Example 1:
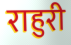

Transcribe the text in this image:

राहुरी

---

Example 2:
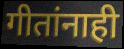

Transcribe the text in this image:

गीतांनाही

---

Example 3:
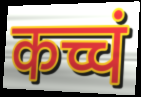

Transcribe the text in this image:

कच्चं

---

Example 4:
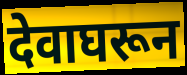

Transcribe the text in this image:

देवाघरून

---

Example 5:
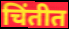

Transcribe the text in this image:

चिंतीत